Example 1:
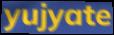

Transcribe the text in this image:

yujyate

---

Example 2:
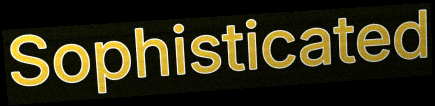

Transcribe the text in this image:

Sophisticated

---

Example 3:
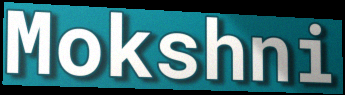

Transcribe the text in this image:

Mokshni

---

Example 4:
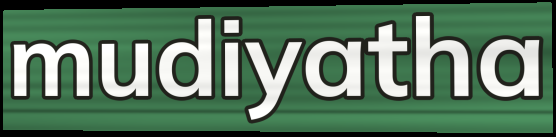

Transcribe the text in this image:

mudiyatha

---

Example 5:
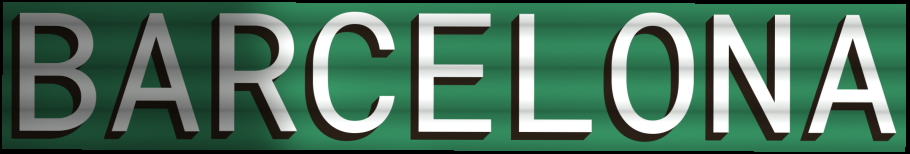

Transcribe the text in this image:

BARCELONA